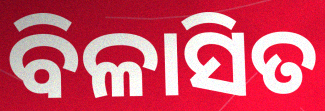
ବିଳାସିତ